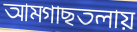
আমগাছতলায়